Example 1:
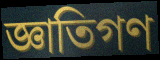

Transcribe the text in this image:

জ্ঞাতিগণ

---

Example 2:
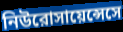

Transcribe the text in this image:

নিউরোসায়েন্সেসে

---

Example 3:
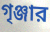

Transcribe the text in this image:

গৃঞ্জার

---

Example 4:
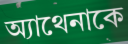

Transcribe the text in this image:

অ্যাথেনাকে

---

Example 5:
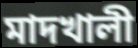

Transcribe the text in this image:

মাদখালী